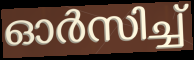
ഓർസിച്ച്